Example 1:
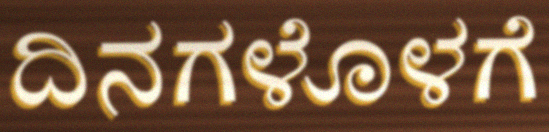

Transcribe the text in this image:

ದಿನಗಳೊಳಗೆ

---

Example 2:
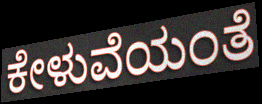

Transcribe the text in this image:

ಕೇಳುವೆಯಂತೆ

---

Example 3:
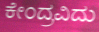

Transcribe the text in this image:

ಕೇಂದ್ರವಿದು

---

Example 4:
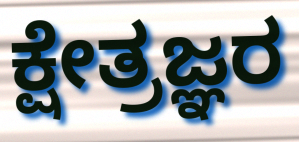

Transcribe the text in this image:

ಕ್ಷೇತ್ರಜ್ಞರ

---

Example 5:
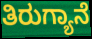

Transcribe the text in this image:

ತಿರುಗ್ಯಾನೆ